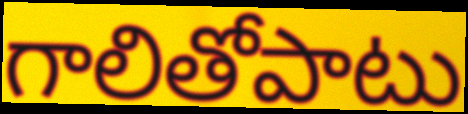
గాలితోపాటు